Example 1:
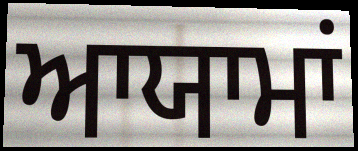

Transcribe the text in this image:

ਆਯਾਮਾਂ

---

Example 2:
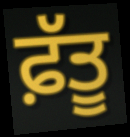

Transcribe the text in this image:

ਫ਼ੱਤੂ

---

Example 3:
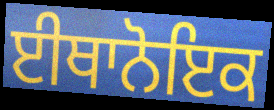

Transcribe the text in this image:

ਈਥਾਨੋਇਕ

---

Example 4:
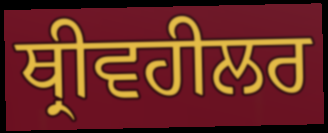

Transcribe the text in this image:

ਥ੍ਰੀਵਹੀਲਰ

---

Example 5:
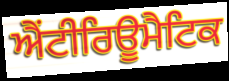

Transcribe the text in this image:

ਐਂਟੀਰਿਊਮੈਟਿਕ